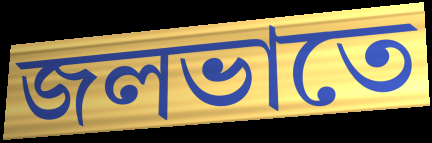
জলভাতে